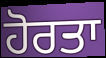
ਹੋਰਤਾ